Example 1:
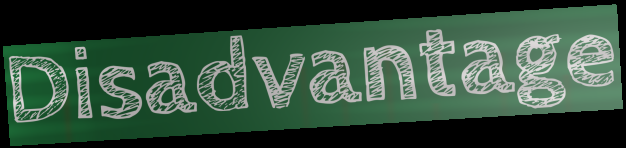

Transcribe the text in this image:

Disadvantage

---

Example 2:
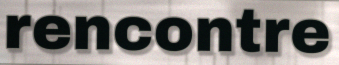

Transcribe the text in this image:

rencontre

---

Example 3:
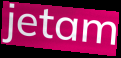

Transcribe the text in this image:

jetam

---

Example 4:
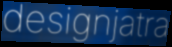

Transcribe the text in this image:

designjatra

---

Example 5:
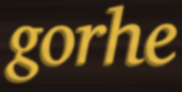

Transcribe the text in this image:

gorhe